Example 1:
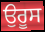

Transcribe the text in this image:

ਉਰੂਸ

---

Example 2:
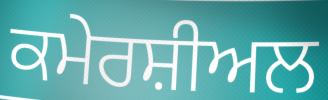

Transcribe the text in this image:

ਕਮੇਰਸ਼ੀਅਲ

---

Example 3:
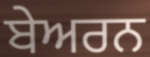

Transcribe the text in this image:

ਬੇਅਰਨ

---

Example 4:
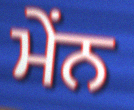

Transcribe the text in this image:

ਮੇਂਨ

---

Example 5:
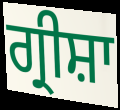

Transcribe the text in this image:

ਗ੍ਰੀਸ਼ਾ